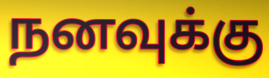
நனவுக்கு